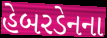
હેબરડેનના